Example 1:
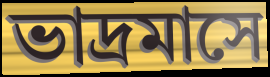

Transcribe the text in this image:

ভাদ্রমাসে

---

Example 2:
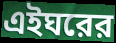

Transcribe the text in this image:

এইঘরের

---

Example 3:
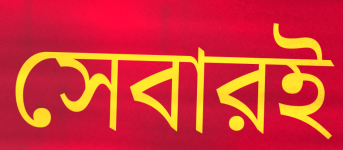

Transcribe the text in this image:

সেবারই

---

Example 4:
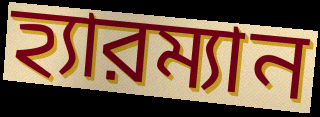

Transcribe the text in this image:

হ্যারম্যান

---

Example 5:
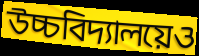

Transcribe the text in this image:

উচ্চবিদ্যালয়েও